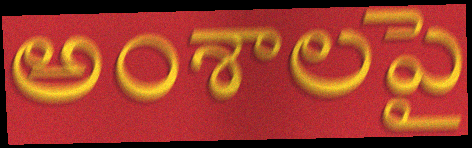
అంశాలపై